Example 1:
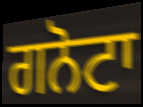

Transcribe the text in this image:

ਗਨੋਟਾ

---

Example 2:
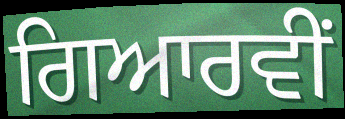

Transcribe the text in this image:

ਗਿਆਰਵੀਂ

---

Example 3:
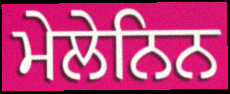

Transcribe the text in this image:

ਮੇਲੇਨਿਨ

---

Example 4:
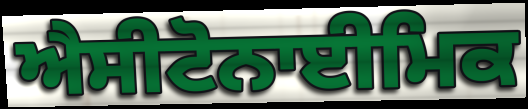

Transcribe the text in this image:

ਐਸੀਟੋਨਾਈਮਿਕ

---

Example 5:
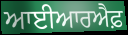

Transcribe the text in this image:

ਆਈਆਰਐਫ਼